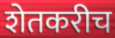
शेतकरीच